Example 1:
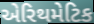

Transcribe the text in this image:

એરિથમેટિક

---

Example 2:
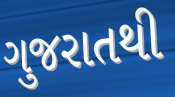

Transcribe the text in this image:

ગુજરાતથી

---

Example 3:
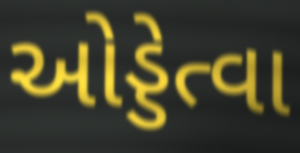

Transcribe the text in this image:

ઓડ્ડેત્વા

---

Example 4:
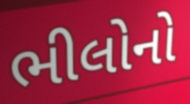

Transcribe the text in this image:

ભીલોનો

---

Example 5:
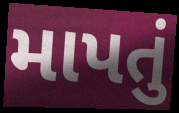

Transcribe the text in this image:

માપતું